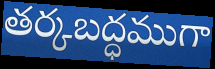
తర్కబద్ధముగా